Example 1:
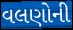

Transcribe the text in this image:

વલણોની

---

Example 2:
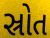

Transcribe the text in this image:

સ્રોત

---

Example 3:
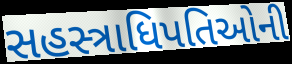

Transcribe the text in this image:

સહસ્ત્રાધિપતિઓની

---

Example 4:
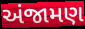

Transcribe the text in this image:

અંજામણ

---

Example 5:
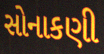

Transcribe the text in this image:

સોનાકણી